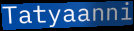
Tatyaanni